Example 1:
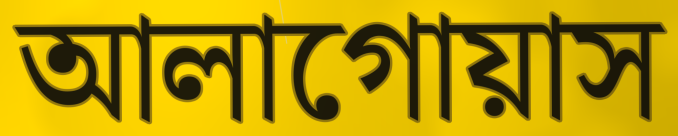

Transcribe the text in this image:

আলাগোয়াস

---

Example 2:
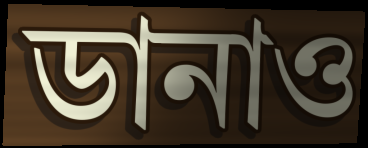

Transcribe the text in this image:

ডানাও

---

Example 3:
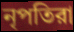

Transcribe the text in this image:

নৃপতিরা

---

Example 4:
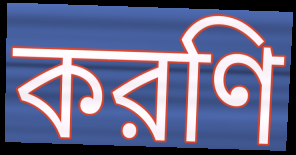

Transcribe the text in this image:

করণি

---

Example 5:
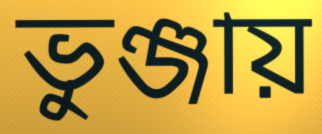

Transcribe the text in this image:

ভুঞ্জায়